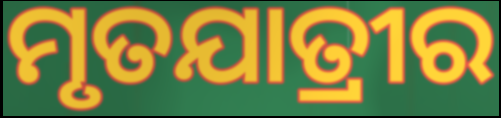
ମୃତଯାତ୍ରୀର